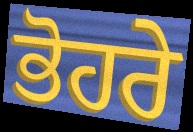
ਭੋਹਰੇ